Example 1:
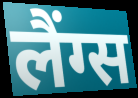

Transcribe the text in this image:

लैंग्स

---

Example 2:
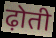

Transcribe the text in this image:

ढ़ोती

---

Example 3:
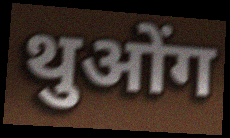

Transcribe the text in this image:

थुओंग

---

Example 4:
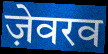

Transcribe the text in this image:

ज़ेवरव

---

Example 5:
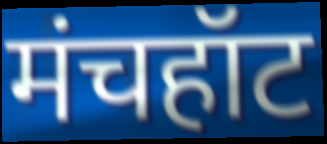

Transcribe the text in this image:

मंचहॉट